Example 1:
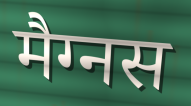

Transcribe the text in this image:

मैग्नस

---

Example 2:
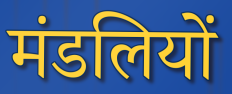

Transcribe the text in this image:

मंडलियों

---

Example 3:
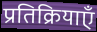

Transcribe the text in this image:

प्रतिक्रियाएँ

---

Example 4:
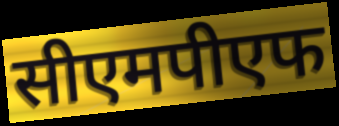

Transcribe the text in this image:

सीएमपीएफ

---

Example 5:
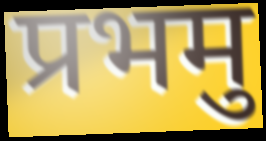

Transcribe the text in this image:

प्रभमु